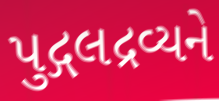
પુદ્ગલદ્રવ્યને